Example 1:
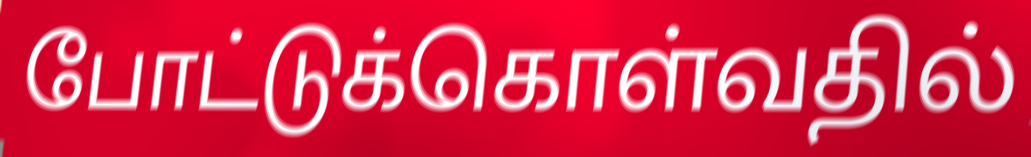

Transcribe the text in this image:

போட்டுக்கொள்வதில்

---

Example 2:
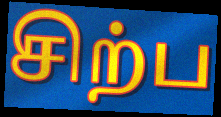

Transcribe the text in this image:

சிற்ப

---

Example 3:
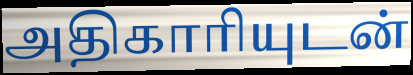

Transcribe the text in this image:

அதிகாரியுடன்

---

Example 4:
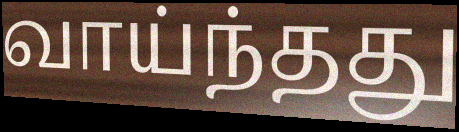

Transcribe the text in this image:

வாய்ந்தது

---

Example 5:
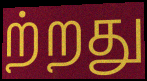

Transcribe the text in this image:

ற்றது